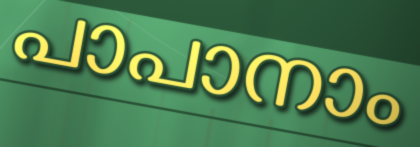
പാപാനാം